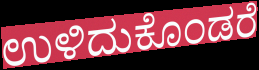
ಉಳಿದುಕೊಂಡರೆ